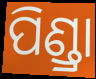
ପିଣ୍ଡ୍ରା